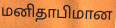
மனிதாபிமான